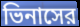
ভিনাসের